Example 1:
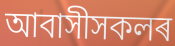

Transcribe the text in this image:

আবাসীসকলৰ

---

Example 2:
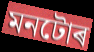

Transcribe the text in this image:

মনটোৰ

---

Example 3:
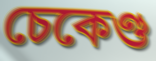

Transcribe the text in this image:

চেকেণ্ড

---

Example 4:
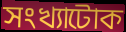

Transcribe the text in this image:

সংখ্যাটোক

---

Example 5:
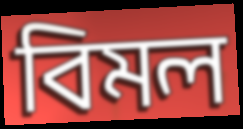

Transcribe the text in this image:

বিমল